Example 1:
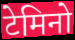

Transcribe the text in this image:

टेमिनो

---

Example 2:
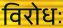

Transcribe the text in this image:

विरोधः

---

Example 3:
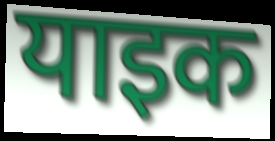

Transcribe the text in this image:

याइक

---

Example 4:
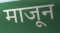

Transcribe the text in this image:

माजून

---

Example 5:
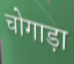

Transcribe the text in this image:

चोगाड़ा